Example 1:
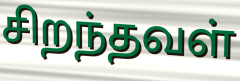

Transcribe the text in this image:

சிறந்தவள்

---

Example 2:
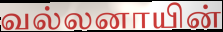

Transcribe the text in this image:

வல்லனாயின்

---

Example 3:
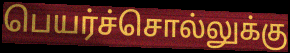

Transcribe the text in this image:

பெயர்ச்சொல்லுக்கு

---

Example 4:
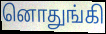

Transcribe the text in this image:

னொதுங்கி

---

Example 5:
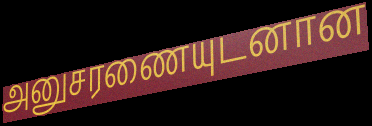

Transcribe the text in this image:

அனுசரணையுடனான